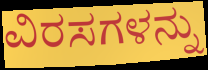
ವಿರಸಗಳನ್ನು